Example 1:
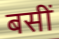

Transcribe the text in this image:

बसीं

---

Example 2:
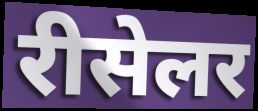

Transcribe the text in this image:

रीसेलर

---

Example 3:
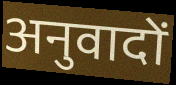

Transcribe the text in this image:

अनुवादों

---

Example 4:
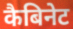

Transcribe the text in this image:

कैबिनेट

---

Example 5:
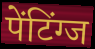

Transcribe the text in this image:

पेंटिंग्ज